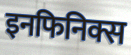
इनफिनिक्स